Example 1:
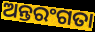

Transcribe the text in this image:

ଅନ୍ତରଂଗତା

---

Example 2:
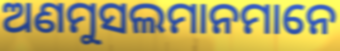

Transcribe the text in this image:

ଅଣମୁସଲମାନମାନେ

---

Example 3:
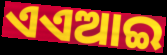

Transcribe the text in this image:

ଏଏଆଇ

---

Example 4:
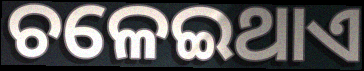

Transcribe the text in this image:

ଚଳେଇଥାଏ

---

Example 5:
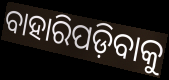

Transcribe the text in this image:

ବାହାରିପଡ଼ିବାକୁ